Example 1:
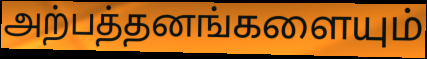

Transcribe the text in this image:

அற்பத்தனங்களையும்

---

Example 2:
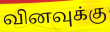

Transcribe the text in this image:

வினவுக்கு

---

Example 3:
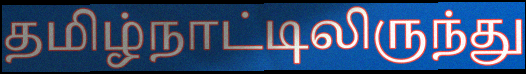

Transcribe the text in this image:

தமிழ்நாட்டிலிருந்து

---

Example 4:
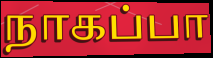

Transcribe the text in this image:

நாகப்பா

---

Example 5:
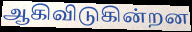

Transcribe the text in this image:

ஆகிவிடுகின்றன